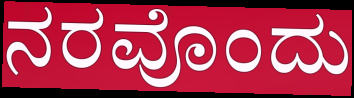
ನರವೊಂದು